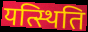
यत्स्थिति